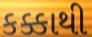
કક્કાથી